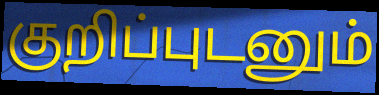
குறிப்புடனும்